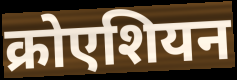
क्रोएशियन